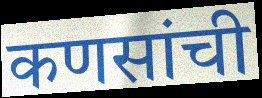
कणसांची